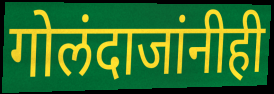
गोलंदाजांनीही